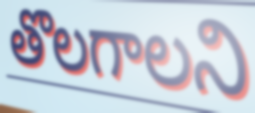
తొలగాలని